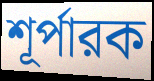
শূর্পারক